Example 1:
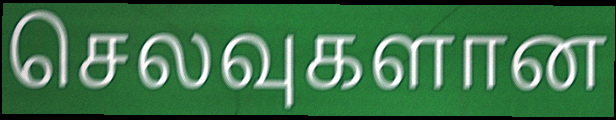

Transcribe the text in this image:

செலவுகளான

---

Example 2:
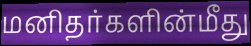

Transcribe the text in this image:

மனிதர்களின்மீது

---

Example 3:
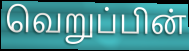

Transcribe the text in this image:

வெறுப்பின்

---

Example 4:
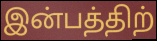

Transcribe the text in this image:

இன்பத்திற்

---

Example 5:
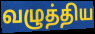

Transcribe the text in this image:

வழுத்திய